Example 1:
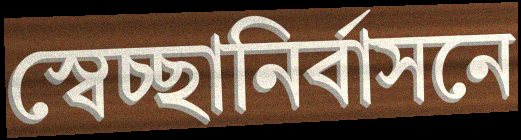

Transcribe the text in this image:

স্বেচ্ছানির্বাসনে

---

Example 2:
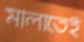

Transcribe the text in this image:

মালাতেই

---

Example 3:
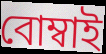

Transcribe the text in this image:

বোম্বাই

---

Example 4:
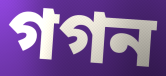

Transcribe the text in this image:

গগন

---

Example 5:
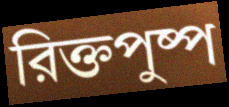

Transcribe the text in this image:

রিক্তপুষ্প